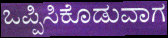
ಒಪ್ಪಿಸಿಕೊಡುವಾಗ